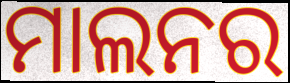
ମାଲନର